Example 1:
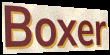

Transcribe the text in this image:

Boxer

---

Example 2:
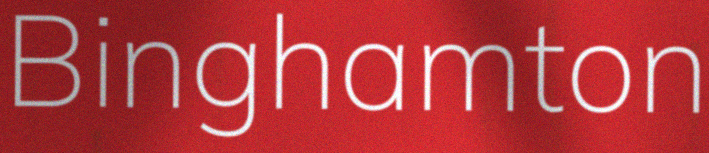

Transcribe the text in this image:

Binghamton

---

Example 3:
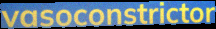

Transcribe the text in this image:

vasoconstrictor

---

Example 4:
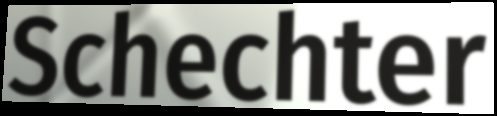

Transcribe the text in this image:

Schechter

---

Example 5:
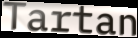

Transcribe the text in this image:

Tartan